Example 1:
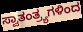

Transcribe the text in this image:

ಸ್ವಾತಂತ್ರ್ಯಗಳಿಂದ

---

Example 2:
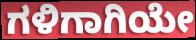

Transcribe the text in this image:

ಗಳಿಗಾಗಿಯೇ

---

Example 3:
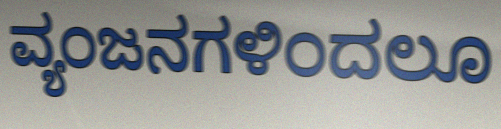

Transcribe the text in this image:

ವ್ಯಂಜನಗಳಿಂದಲೂ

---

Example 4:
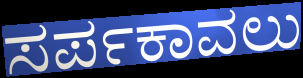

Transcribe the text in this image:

ಸರ್ಪಕಾವಲು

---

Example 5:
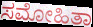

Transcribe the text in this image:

ಸಮೋಹಿತಾ